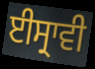
ਈਸ੍ਰਾਵੀ